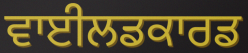
ਵਾਈਲਡਕਾਰਡ